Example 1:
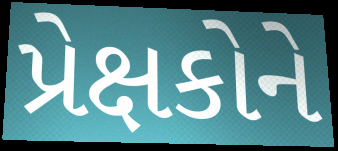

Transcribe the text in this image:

પ્રેક્ષકોને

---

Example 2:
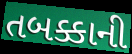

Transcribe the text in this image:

તબક્કાની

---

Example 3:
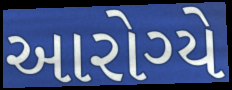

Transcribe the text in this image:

આરોગ્યે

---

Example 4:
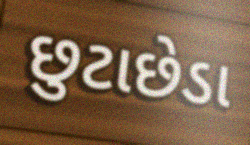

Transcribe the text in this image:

છુટાછેડા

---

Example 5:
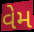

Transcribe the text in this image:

વેમ